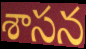
శాసన